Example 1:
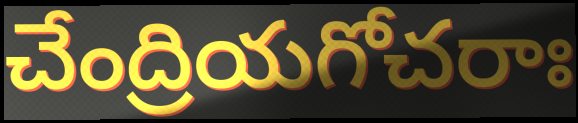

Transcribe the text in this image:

చేంద్రియగోచరాః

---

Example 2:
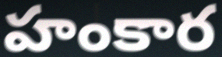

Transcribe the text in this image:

హంకార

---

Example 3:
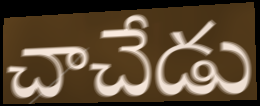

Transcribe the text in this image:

చాచేడు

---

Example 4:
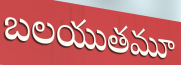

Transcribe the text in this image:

బలయుతమూ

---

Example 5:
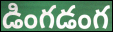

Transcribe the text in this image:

డింగడంగ